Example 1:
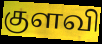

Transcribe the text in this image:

குளவி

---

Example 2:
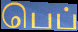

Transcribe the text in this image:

பெப்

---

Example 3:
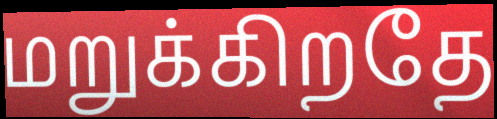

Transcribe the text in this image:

மறுக்கிறதே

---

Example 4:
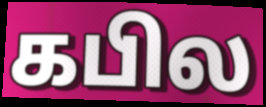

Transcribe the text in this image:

கபில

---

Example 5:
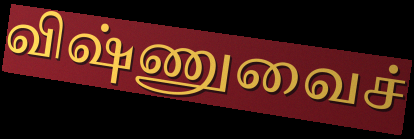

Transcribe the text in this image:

விஷ்ணுவைச்